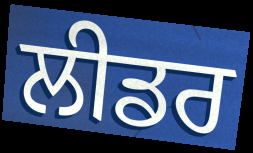
ਲੀਡਰ